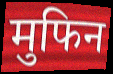
मुफिन